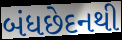
બંધછેદનથી